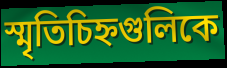
স্মৃতিচিহ্নগুলিকে